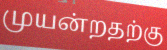
முயன்றதற்கு